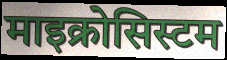
माइक्रोसिस्टम